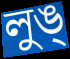
লুঙ্